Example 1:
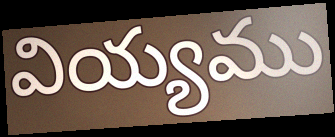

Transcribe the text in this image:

వియ్యము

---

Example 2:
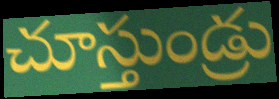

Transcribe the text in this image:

చూస్తుండ్రు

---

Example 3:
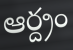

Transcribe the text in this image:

ఆర్ద్రం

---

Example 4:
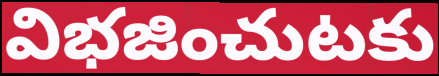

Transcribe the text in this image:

విభజించుటకు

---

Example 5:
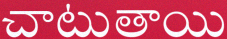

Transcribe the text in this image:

చాటుతాయి